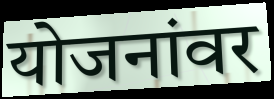
योजनांवर